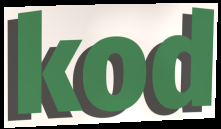
kod